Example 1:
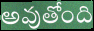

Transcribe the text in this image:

అవుతోంది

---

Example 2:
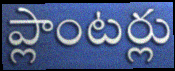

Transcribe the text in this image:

ప్లాంటర్లు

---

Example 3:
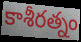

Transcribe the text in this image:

కాశీరత్నం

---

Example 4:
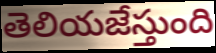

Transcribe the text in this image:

తెలియజేస్తుంది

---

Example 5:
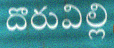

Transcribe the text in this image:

దొరువిల్లి